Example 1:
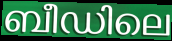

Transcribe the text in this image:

ബീഡിലെ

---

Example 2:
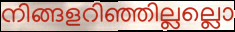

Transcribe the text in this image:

നിങ്ങളറിഞ്ഞില്ലല്ലൊ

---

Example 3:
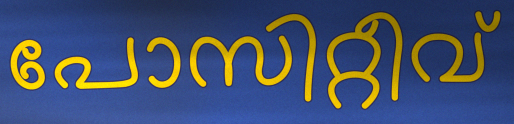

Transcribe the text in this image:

പോസിറ്റീവ്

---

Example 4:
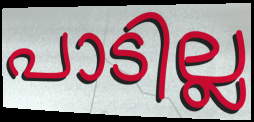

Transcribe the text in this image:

പാടില്ല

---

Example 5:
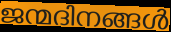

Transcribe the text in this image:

ജന്മദിനങ്ങൾ